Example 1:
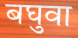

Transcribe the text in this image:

बघुवा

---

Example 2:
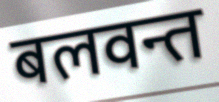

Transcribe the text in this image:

बलवन्‍त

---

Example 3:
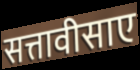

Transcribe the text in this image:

सत्तावीसाए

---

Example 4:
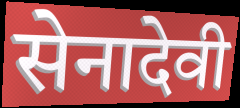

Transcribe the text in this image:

सेनादेवी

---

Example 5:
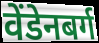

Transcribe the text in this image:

वेंडेनबर्ग